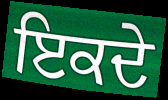
ਇਕਦੇ